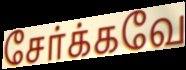
சேர்க்கவே